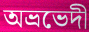
অভ্রভেদী